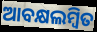
ଆବକ୍ଷଲମ୍ବିତ